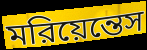
মরিয়েন্তেস